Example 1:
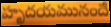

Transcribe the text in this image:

హృదయమునందే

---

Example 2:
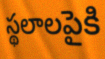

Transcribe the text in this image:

స్థలాలపైకి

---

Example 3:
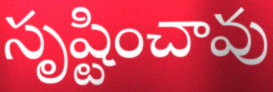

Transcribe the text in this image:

సృష్టించావు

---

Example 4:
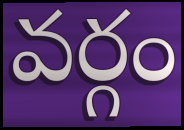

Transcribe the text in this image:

వర్గం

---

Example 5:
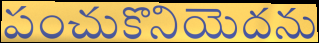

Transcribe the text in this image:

పంచుకొనియెదను